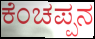
ಕೆಂಚಪ್ಪನ